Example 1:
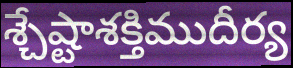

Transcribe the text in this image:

శ్చేష్టాశక్తిముదీర్య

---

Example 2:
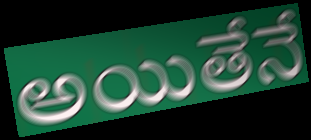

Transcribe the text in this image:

అయితేనే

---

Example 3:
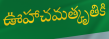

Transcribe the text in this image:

ఊహాచమత్కృతికి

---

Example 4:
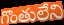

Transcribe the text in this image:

గొంతులేని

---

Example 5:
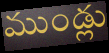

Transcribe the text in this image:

ముండ్లు